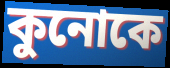
কুনোকে